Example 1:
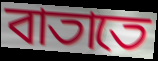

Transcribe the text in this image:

বাতাতে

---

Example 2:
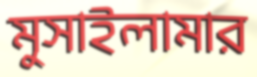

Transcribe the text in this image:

মুসাইলামার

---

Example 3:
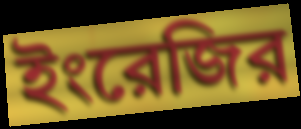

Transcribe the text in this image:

ইংরেজির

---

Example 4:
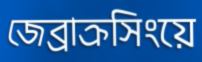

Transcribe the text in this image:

জেব্রাক্রসিংয়ে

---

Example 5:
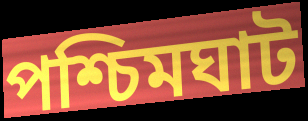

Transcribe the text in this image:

পশ্চিমঘাট